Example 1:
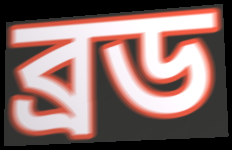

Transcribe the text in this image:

ব্ৰড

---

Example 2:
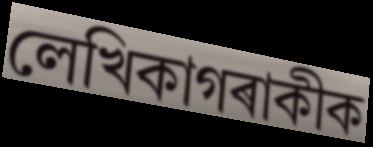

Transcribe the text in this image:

লেখিকাগৰাকীক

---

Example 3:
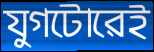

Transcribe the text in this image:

যুগটোৱেই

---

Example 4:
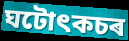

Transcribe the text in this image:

ঘটোৎকচৰ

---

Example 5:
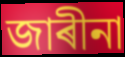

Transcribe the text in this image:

জাৰীনা